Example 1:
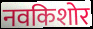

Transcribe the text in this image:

नवकिशोर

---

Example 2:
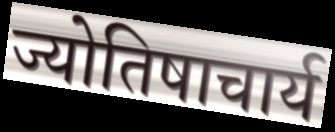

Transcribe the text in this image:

ज्योतिषाचार्य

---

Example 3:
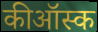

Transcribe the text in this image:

कीऑस्क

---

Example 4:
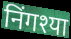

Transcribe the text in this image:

निंगश्या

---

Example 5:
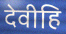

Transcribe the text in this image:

देवीहि